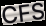
CFS